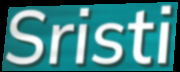
Sristi